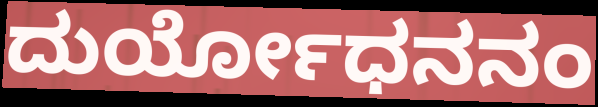
ದುರ್ಯೋಧನನಂ